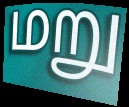
மறு